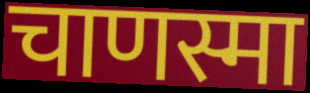
चाणस्मा